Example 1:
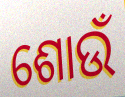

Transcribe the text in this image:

ଶୋଉଁ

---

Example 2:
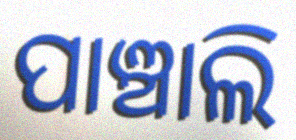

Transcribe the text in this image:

ପାଞ୍ଚାଲି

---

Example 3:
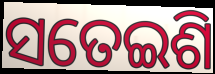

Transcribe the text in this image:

ସତେଇଶି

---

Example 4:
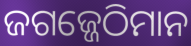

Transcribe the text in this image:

ଜଗଜ୍ଜେଠିମାନ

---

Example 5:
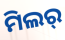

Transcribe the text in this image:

ମିଲର୍